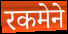
रकमेने